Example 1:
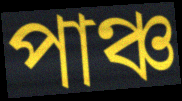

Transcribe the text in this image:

পাঞ্চ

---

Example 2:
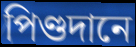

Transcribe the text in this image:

পিণ্ডদানে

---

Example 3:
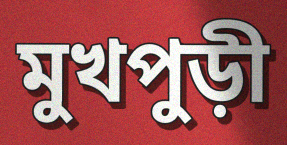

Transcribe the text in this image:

মুখপুড়ী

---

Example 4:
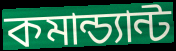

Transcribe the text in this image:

কমান্ড্যান্ট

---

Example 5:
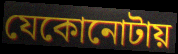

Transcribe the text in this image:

যেকোনোটায়